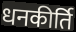
धनकीर्ति